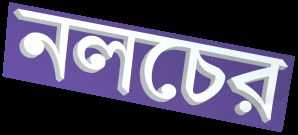
নলচের